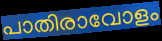
പാതിരാവോളം